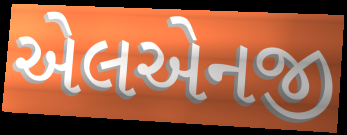
એલએનજી